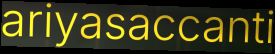
ariyasaccanti